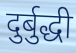
दुर्बुद्धी